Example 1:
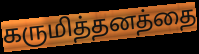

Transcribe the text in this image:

கருமித்தனத்தை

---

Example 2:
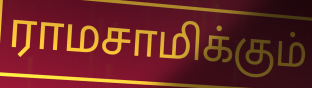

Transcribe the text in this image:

ராமசாமிக்கும்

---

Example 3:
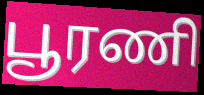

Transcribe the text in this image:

பூரணி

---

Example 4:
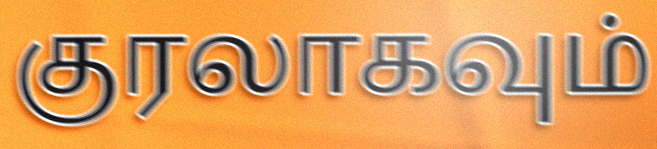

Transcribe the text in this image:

குரலாகவும்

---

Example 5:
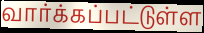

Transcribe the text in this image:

வார்க்கப்பட்டுள்ள